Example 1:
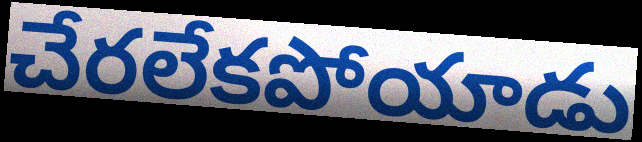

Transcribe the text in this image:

చేరలేకపోయాడు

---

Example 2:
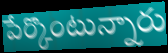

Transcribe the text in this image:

పేర్కొంటున్నారు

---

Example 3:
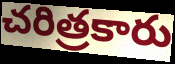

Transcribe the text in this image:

చరిత్రకారు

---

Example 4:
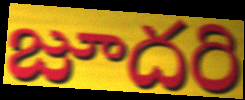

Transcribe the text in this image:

జూదరి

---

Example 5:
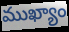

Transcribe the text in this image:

ముఖ్యాం